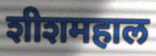
शीशमहाल